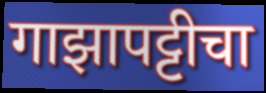
गाझापट्टीचा